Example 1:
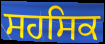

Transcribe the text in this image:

ਸਹਸਿਕ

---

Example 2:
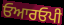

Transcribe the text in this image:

ਓਆਰਓਪੀ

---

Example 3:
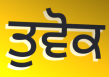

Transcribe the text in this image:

ਤੁਵੋਕ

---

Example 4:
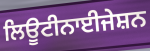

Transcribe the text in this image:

ਲਿਊਟੀਨਾਈਜੇਸ਼ਨ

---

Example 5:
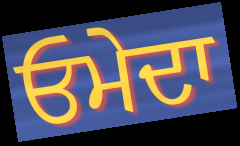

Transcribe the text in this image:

ਓਮੇਦਾ